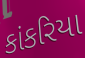
કાંકરિયા